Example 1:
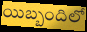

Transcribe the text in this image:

యిబ్బందిలో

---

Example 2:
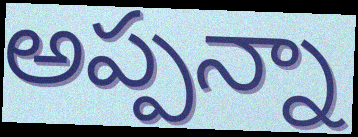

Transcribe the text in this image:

అప్పన్నా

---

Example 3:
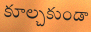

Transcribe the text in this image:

కూల్చకుండా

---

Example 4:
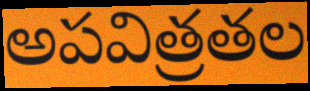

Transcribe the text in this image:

అపవిత్రతల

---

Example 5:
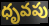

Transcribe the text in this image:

ధృవపు